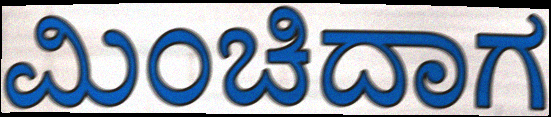
ಮಿಂಚಿದಾಗ